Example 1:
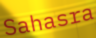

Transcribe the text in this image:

Sahasra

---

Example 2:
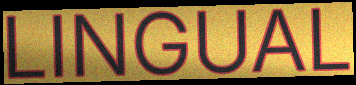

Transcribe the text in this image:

LINGUAL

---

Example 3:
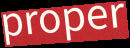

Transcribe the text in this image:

proper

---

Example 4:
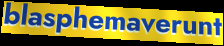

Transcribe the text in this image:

blasphemaverunt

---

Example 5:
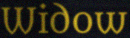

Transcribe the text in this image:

Widow